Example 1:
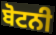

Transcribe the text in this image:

ਬੋਟਨੀ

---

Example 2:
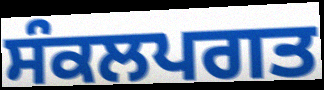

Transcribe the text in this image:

ਸੰਕਲਪਗਤ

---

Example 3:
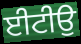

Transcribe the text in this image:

ਈਟੀਉ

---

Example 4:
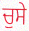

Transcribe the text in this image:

ਚੁਸੇ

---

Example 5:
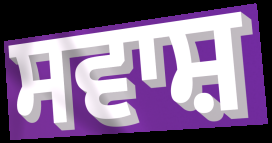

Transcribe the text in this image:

ਸਵਾਸ਼